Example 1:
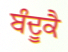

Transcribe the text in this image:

ਬੰਦੂਕੈ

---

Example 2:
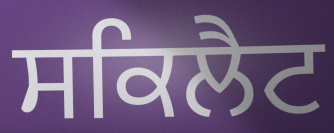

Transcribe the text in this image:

ਸਕਿਲੈਟ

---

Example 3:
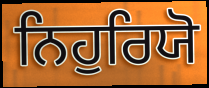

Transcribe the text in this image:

ਨਿਹੁਰਿਯੋ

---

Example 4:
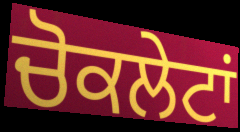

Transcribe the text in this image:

ਚੋਕਲੇਟਾਂ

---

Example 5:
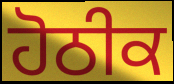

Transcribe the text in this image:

ਹੋਠੀਕ